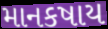
માનકષાય